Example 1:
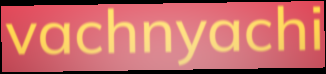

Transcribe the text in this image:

vachnyachi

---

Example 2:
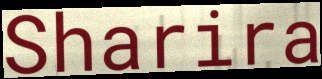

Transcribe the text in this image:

Sharira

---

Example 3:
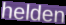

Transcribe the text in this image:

helden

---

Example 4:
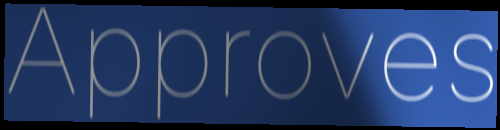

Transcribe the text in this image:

Approves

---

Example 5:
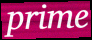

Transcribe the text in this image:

prime